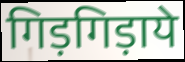
गिड़गिड़ाये